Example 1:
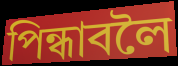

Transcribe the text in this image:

পিন্ধাবলৈ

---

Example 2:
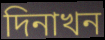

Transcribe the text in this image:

দিনাখন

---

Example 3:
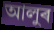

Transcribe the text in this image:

আলুৰ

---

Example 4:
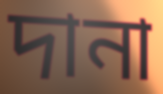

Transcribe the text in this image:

দানা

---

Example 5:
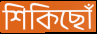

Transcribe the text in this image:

শিকিছোঁ